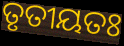
ତୃତୀୟତଃ